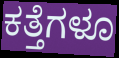
ಕತ್ತೆಗಳೂ